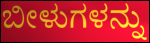
ಬೀಳುಗಳನ್ನು